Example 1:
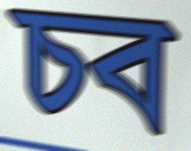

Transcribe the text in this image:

চব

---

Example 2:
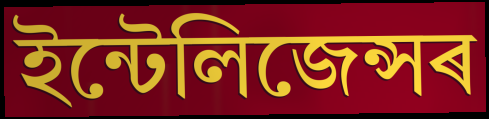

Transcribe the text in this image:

ইন্টেলিজেন্সৰ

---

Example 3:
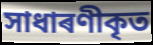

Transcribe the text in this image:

সাধাৰণীকৃত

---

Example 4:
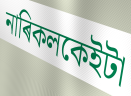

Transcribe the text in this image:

নাৰিকলকেইটা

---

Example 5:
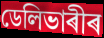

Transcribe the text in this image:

ডেলিভাৰীৰ